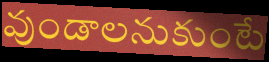
వుండాలనుకుంటే